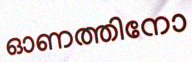
ഓണത്തിനോ